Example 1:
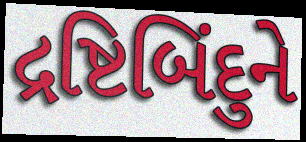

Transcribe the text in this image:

દ્રષ્ટિબિંદુને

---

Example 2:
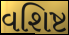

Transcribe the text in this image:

વશિષ્ટ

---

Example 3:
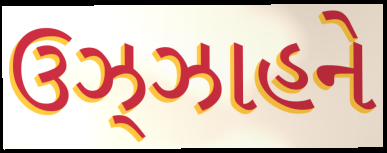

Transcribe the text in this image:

ઉઝ્ઝાહને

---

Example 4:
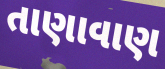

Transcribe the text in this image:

તાણાવાણ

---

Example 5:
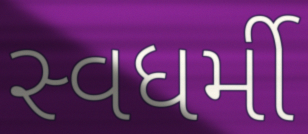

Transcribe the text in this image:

સ્વધર્મી